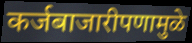
कर्जबाजारीपणामुळे